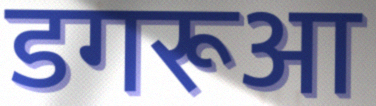
डगरूआ